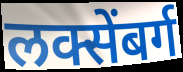
लक्सेंबर्ग